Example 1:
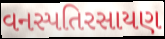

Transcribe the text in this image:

વનસ્પતિરસાયણ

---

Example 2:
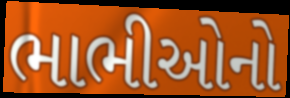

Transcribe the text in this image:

ભાભીઓનો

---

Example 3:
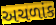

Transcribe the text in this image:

અચળાંક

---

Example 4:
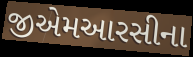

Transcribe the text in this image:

જીએમઆરસીના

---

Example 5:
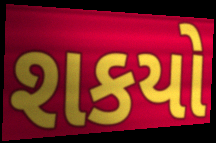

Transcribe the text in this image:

શકયો